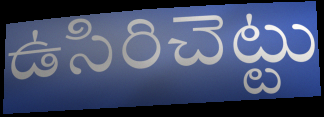
ఉసిరిచెట్టు